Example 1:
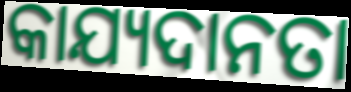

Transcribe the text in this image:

କାଯ୍ୟଦାନତା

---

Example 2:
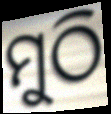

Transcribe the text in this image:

ମୁଠି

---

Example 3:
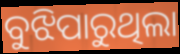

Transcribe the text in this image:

ବୁଝିପାରୁଥିଲା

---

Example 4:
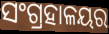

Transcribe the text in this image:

ସଂଗ୍ରହାଳୟର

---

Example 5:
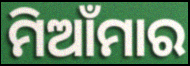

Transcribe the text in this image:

ମିଆଁମାର